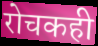
रोचकही